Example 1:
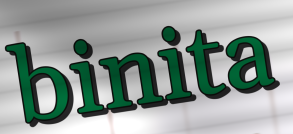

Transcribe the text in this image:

binita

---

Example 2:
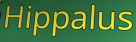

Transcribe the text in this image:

Hippalus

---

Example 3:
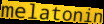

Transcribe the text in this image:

melatonin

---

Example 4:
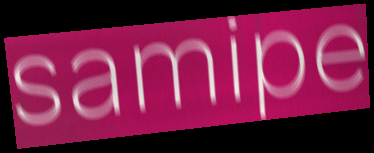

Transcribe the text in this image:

samipe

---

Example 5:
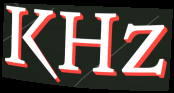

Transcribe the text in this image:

KHz